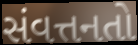
સંવત્તનતો